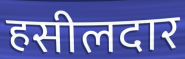
हसीलदार